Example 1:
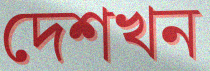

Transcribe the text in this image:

দেশখন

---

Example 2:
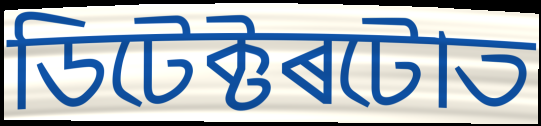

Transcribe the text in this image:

ডিটেক্টৰটোত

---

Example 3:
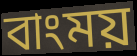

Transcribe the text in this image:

বাংময়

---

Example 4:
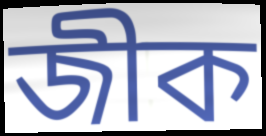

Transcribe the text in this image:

জীক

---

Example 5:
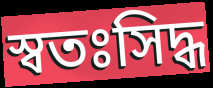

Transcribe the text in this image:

স্বতঃসিদ্ধ